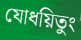
যোধয়িতুং